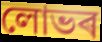
লোভৰ